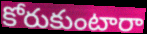
కోరుకుంటారా